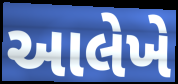
આલેખે